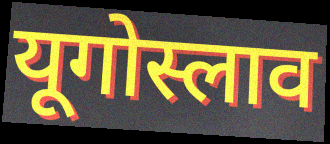
यूगोस्लाव